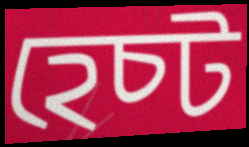
হেচ্ট